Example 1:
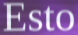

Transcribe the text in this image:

Esto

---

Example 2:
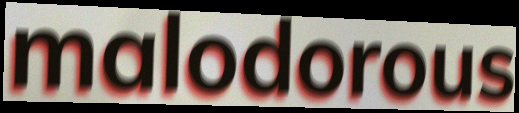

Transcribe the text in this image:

malodorous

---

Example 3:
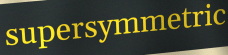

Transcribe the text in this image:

supersymmetric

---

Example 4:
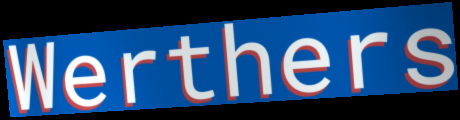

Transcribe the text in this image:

Werthers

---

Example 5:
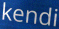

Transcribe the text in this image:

kendi